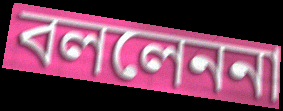
বললেননা